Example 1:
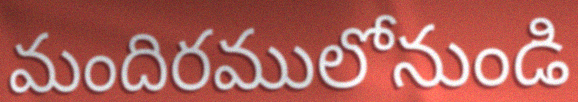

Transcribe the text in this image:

మందిరములోనుండి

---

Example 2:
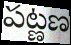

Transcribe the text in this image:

పట్ణణ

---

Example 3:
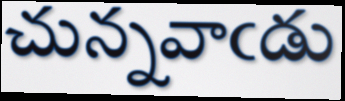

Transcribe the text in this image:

చున్నవాఁడు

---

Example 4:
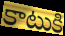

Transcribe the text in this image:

కాటుకి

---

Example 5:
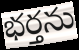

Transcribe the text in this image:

భర్తను